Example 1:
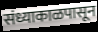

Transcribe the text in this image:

संध्याकाळपासून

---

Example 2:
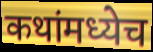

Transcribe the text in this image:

कथांमध्येच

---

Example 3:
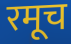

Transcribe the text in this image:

रमूच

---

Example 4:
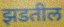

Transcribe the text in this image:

झडतील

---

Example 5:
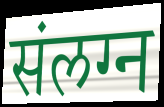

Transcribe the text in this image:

संलग्‍न